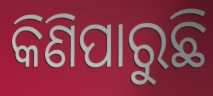
କିଣିପାରୁଛି